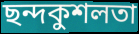
ছন্দকুশলতা